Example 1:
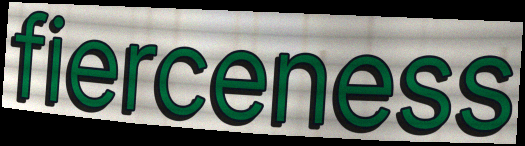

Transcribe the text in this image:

fierceness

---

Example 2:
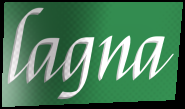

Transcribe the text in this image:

lagna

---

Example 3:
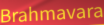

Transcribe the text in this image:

Brahmavara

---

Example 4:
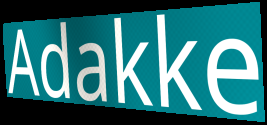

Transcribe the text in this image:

Adakke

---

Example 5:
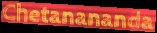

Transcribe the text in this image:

Chetanananda